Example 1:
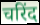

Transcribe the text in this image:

चरिंद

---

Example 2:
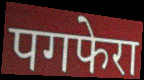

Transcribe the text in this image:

पगफेरा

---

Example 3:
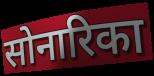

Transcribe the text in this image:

सोनारिका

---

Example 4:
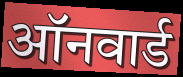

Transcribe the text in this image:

ऑनवार्ड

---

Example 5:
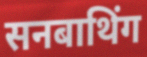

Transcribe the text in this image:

सनबाथिंग